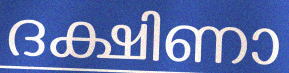
ദക്ഷിണാ